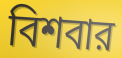
বিশবার